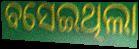
ବସେଇଥିଲା